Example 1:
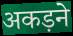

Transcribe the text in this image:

अकड़ने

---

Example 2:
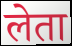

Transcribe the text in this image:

लेता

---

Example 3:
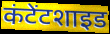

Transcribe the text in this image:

कंटेंटशाइड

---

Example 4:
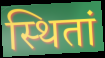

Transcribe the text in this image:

स्थितां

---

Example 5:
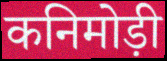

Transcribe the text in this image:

कनिमोड़ी